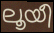
ലൂയീ